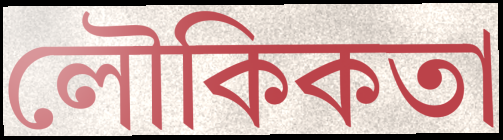
লৌকিকতা